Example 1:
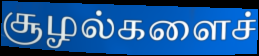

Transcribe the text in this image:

சூழல்களைச்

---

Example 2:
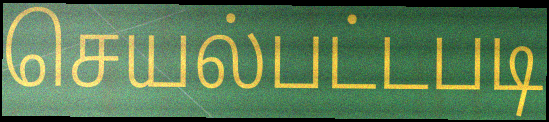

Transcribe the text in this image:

செயல்பட்டபடி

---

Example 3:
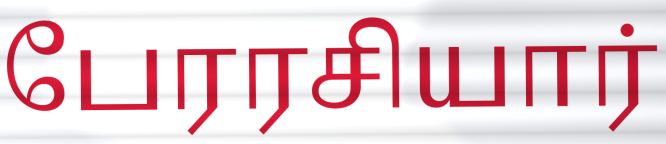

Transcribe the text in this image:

பேரரசியார்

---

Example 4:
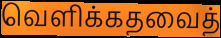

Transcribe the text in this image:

வெளிக்கதவைத்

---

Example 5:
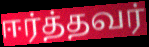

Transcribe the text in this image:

ஈர்த்தவர்